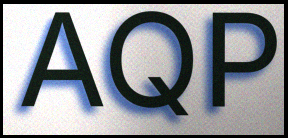
AQP